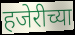
हजेरीच्या